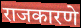
राजकारणे